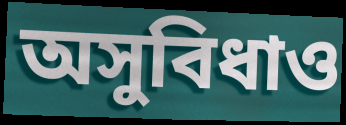
অসুবিধাও